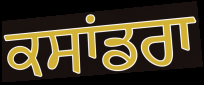
ਕਸਾਂਡਰਾ